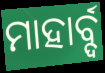
ମାହାର୍ବ୍ଦ